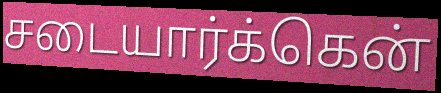
சடையார்க்கென்